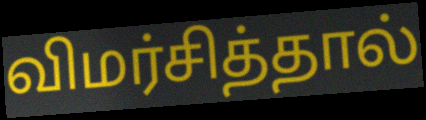
விமர்சித்தால்